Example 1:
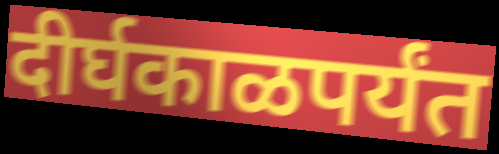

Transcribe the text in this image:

दीर्घकाळपर्यंत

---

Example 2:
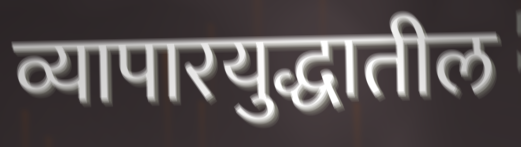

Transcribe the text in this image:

व्यापारयुद्धातील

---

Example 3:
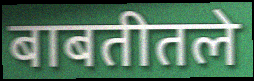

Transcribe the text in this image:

बाबतीतले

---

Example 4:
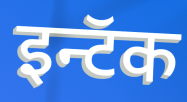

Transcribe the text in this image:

इन्टॅक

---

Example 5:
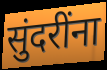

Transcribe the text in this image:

सुंदरींना